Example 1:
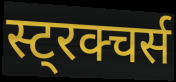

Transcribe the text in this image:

स्ट्रक्चर्स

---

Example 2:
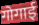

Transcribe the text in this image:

गोगाई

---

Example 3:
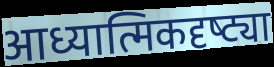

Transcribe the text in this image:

आध्यात्मिकदृष्ट्या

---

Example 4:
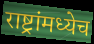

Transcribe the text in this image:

राष्ट्रांमध्येच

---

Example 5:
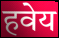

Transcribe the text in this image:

हवेय